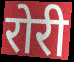
रोरी